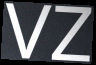
VZ